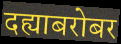
दह्याबरोबर